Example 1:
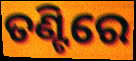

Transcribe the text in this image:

ତଣ୍ଟିରେ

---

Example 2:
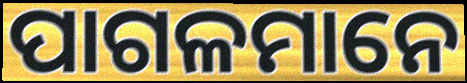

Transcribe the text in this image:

ପାଗଳମାନେ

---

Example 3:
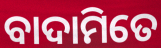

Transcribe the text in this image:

ବାଦାମିତେ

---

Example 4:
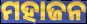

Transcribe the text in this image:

ମହାଜନ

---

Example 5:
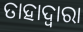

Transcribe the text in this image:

ତାହାଦ୍ଵାରା